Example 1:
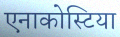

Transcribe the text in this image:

एनाकोस्टिया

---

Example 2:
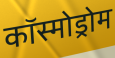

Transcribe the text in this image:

कॉस्मोड्रोम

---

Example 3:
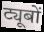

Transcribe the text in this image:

ट्यूबों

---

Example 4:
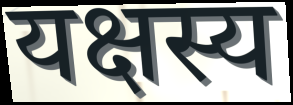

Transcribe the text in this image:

यक्षस्य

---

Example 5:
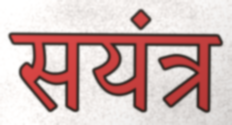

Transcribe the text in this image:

सयंत्र